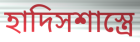
হাদিসশাস্ত্রে